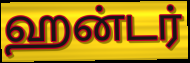
ஹன்டர்